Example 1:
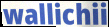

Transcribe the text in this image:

wallichii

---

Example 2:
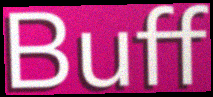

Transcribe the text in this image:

Buff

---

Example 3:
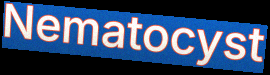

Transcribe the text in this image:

Nematocyst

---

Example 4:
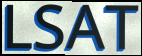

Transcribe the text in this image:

LSAT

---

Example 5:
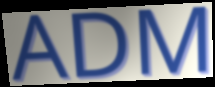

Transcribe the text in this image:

ADM